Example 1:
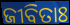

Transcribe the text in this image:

ଜୀବିତାଃ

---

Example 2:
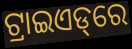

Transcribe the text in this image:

ଟ୍ରାଇଏଡ୍‌ରେ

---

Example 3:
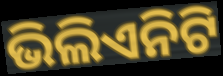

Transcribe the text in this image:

ଭିଲିଏନିଟି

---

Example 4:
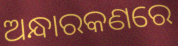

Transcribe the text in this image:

ଅନ୍ଧାରକଣରେ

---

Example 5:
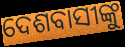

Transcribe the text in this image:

ଦେଶବାସୀଙ୍କୁ